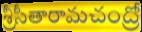
శ్రీసీతారామచంద్రో